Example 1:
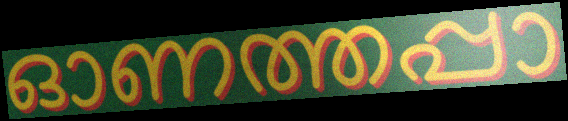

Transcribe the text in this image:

ഓണത്തപ്പാ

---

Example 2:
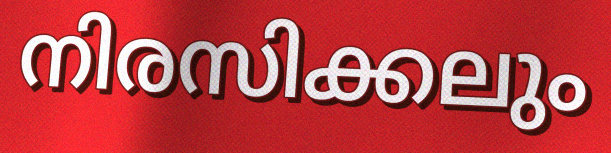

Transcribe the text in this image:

നിരസിക്കലും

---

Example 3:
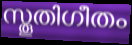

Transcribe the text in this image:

സ്തൂതിഗീതം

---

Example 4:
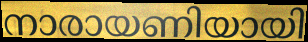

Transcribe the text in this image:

നാരായണിയായി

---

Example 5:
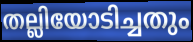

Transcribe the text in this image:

തല്ലിയോടിച്ചതും